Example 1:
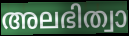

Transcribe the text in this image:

അലഭിത്വാ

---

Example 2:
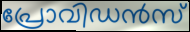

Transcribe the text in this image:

പ്രോവിഡൻസ്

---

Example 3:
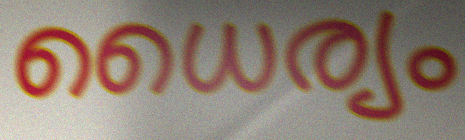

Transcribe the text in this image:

ധൈര്യം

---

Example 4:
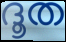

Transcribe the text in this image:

ദൂത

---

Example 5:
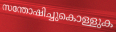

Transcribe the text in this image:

സന്തോഷിച്ചുകൊള്ളുക